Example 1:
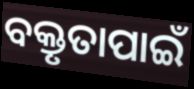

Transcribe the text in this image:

ବକ୍ତୃତାପାଇଁ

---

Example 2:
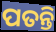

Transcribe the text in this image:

ପତନ୍ତି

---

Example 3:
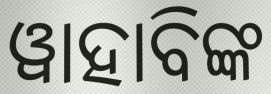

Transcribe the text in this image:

ୱାହାବିଙ୍କ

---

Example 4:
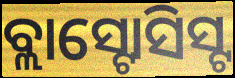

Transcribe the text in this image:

ବ୍ଲାସ୍ଟୋସିସ୍ଟ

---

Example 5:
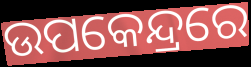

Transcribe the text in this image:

ଉପକେନ୍ଦ୍ରରେ